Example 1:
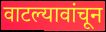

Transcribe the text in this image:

वाटल्यावांचून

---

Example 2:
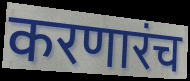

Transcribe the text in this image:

करणारंच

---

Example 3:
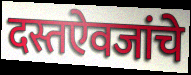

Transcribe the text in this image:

दस्तऐवजांचे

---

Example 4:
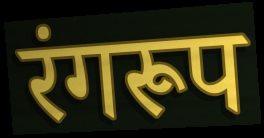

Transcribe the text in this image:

रंगरूप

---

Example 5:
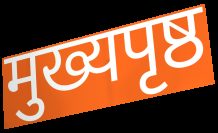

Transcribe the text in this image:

मुख्यपृष्ठ